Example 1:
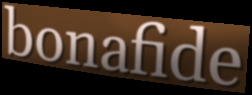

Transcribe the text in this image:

bonafide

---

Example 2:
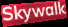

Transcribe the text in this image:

Skywalk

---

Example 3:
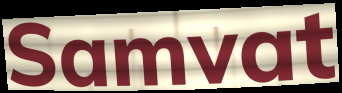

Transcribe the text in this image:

Samvat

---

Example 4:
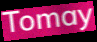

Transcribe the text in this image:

Tomay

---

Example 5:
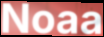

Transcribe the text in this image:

Noaa